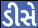
ડીસે